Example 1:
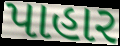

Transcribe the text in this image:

પાહાર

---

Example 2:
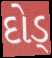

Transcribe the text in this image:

દોડ્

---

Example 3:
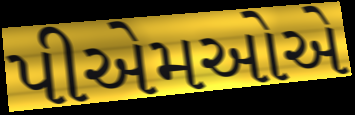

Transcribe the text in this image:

પીએમઓએ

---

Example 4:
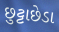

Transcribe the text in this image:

છુટ્ટાછેડા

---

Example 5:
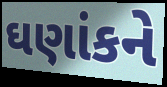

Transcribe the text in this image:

ઘણાંકને